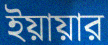
ইয়ায়ার